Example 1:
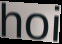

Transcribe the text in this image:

hoi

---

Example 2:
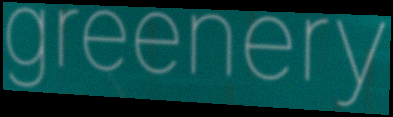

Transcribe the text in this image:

greenery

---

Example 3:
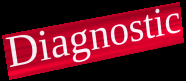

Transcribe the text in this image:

Diagnostic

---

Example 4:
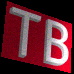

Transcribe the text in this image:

TB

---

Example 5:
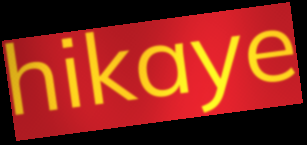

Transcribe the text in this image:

hikaye